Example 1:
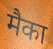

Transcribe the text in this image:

मैका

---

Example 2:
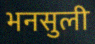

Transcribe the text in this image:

भनसुली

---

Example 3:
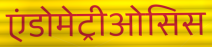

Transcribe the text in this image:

एंडोमेट्रीओसिस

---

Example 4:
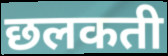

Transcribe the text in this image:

छलकती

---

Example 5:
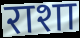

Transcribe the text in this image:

राशा